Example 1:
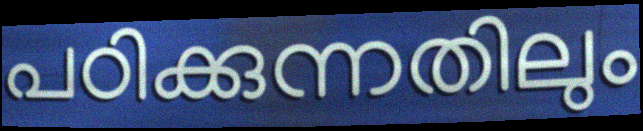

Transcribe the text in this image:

പഠിക്കുന്നതിലും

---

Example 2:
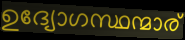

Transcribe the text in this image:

ഉദ്യോഗസ്ഥന്മാര്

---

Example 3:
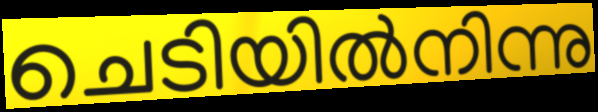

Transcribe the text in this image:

ചെടിയിൽനിന്നു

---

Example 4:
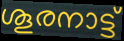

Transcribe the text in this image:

ശൂരനാട്ട്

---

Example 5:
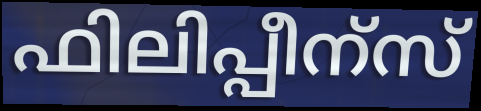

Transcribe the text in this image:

ഫിലിപ്പീന്സ്